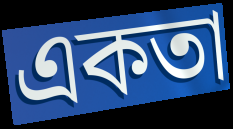
একতা